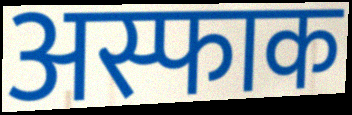
अस्फाक